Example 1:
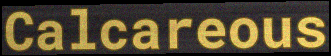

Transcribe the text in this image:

Calcareous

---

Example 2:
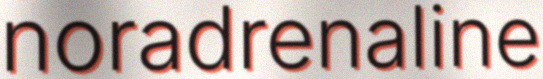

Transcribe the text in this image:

noradrenaline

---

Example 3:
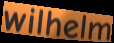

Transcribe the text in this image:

wilhelm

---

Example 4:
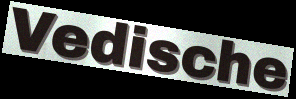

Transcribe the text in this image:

Vedische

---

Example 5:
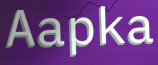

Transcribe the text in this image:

Aapka